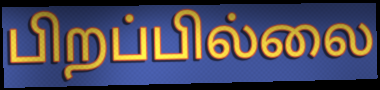
பிறப்பில்லை